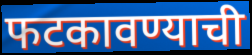
फटकावण्याची